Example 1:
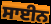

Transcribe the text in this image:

ਸਾਈਨ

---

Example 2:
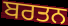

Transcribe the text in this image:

ਬਰਤਨ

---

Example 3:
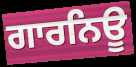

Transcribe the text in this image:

ਗਾਰਨਿਊ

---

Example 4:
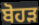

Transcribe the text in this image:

ਬੋਹੜ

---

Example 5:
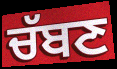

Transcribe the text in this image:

ਚੱਬਣ